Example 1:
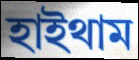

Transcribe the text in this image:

হাইথাম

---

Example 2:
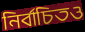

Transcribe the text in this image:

নির্বাচিতও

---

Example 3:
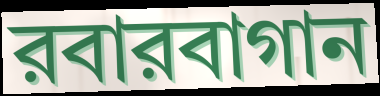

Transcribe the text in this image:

রবারবাগান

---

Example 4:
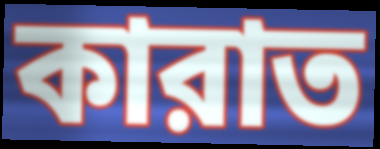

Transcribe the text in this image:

কারাত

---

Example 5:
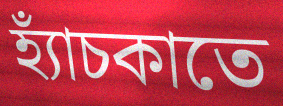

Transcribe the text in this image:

হ্যাঁচকাতে